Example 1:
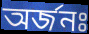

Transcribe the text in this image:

অর্জনঃ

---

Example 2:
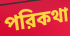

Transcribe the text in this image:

পরিকথা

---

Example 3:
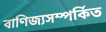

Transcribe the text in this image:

বাণিজ্যসম্পর্কিত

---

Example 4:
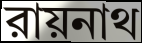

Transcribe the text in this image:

রায়নাথ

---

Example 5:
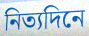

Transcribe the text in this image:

নিত্যদিনে